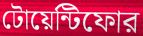
টোয়েন্টিফোর